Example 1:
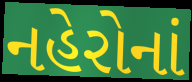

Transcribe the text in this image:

નહેરોનાં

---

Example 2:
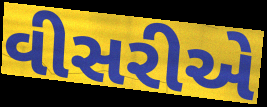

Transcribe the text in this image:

વીસરીએ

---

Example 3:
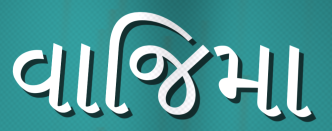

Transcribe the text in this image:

વાજિમા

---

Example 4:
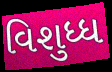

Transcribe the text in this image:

વિશુધ્ધ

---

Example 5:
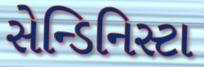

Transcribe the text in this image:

સેન્ડિનિસ્ટા